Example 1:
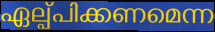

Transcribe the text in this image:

ഏല്പ്പിക്കണമെന്ന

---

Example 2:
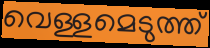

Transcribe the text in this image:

വെള്ളമെടുത്ത്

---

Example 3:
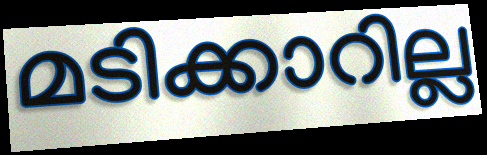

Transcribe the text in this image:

മടിക്കാറില്ല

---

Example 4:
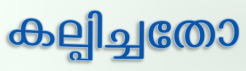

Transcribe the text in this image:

കല്പിച്ചതോ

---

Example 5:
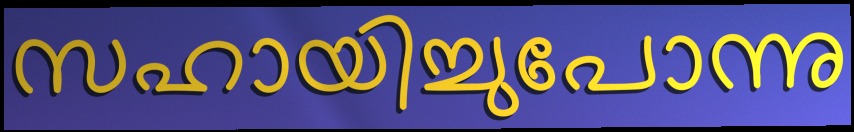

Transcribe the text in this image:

സഹായിച്ചുപോന്നു